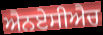
ਐਨਏਸੀਐਚ